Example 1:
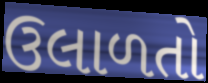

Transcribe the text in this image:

ઉલાળતો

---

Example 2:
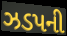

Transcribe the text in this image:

ઝડપની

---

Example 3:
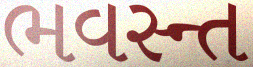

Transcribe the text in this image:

ભવસ્ન્ત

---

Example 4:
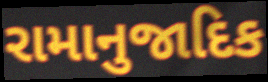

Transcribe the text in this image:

રામાનુજાદિક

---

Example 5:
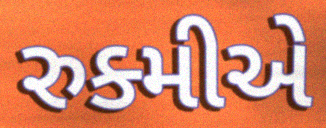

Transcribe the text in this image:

રુક્મીએ